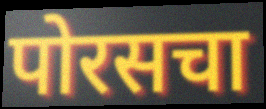
पोरसचा